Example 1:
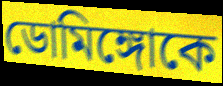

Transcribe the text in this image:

ডোমিঙ্গোকে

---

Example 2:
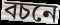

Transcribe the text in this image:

বচনে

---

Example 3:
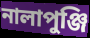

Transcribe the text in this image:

নালাপুঞ্জি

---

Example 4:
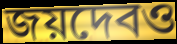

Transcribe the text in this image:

জয়দেবও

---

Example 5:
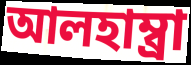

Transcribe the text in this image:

আলহাম্ব্রা